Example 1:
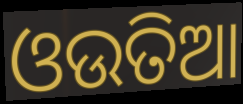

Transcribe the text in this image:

ଓଉତିଆ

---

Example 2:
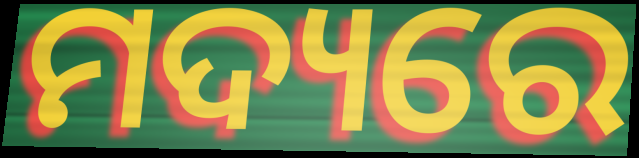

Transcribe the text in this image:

ମଦ୍ୟରେ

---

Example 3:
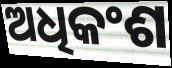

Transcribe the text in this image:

ଅଧିକଂଶ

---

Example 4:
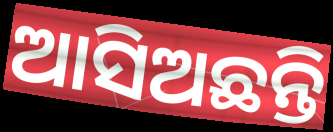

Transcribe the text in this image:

ଆସିଅଛନ୍ତି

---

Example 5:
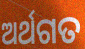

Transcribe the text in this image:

ଅର୍ଥଗତ